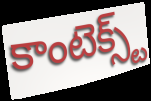
కాంటెక్స్ట్